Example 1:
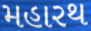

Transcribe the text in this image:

મહારથ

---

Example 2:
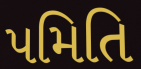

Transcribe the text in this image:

પમિતિ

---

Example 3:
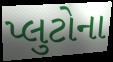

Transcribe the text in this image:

પ્લુટોના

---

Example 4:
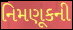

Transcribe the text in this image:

નિમણૂકની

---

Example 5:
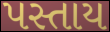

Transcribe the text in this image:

પસ્તાય